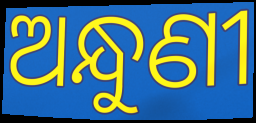
ଅନ୍ଧୁଣୀ